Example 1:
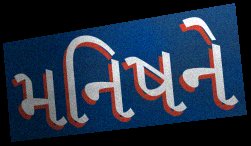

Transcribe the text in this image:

મનિષને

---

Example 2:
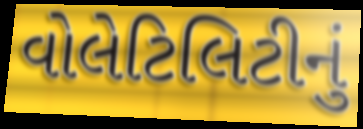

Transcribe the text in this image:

વોલેટિલિટીનું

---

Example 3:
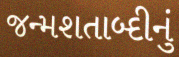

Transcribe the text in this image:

જન્મશતાબ્દીનું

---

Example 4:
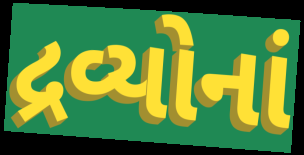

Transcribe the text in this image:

દ્રવ્યોનાં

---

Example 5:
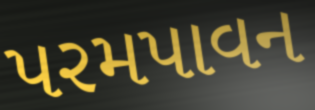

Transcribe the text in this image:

પરમપાવન